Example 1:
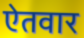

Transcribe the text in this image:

ऐतवार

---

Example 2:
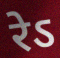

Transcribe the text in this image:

रेऽ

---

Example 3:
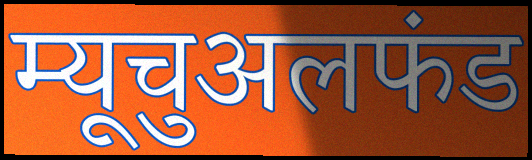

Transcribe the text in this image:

म्यूचुअलफंड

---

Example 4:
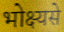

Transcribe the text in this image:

भोक्ष्यसे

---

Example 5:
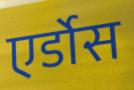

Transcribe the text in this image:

एर्डोस